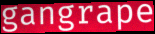
gangrape